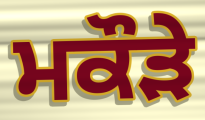
ਮਕੌੜੇ